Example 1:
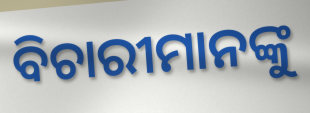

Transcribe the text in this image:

ବିଚାରୀମାନଙ୍କୁ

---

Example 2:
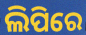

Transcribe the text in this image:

ଲିପିରେ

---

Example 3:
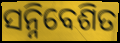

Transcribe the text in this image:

ସନ୍ନିବେଶିତ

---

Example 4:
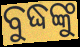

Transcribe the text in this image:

ବୁଦ୍ଧଙ୍କୁ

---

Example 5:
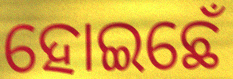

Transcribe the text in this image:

ହୋଇଛେଁ